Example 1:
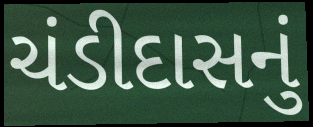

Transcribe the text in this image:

ચંડીદાસનું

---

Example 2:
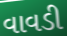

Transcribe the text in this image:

વાવડી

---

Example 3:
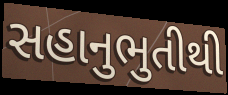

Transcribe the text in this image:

સહાનુભુતીથી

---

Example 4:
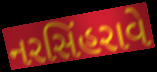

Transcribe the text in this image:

નરસિંહરાવે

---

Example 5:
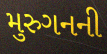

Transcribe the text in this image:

મુરુગનની